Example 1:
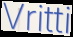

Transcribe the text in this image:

Vritti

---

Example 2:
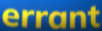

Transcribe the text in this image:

errant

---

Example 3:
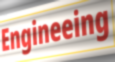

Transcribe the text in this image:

Engineeing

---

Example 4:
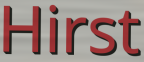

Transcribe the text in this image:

Hirst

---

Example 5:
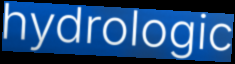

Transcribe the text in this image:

hydrologic